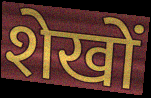
शेखों